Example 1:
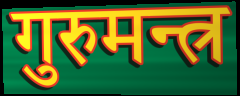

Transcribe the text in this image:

गुरुमन्त्र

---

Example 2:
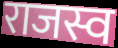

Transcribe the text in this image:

राजस्‍व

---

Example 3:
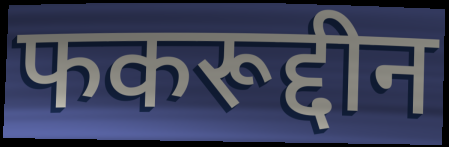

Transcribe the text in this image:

फकरूद्दीन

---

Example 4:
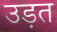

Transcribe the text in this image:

उड़त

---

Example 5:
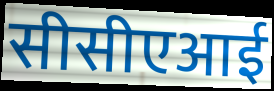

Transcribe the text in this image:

सीसीएआई